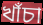
খাঁচা